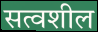
सत्वशील